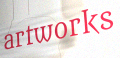
artworks